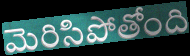
మెరిసిపోతోంది